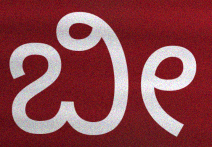
ಬೀ